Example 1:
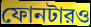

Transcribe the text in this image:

ফোনটারও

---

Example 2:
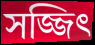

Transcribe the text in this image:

সজ্জিৎ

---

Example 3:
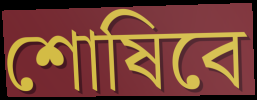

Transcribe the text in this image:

শোষিবে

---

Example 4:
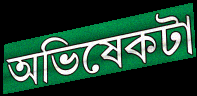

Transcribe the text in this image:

অভিষেকটা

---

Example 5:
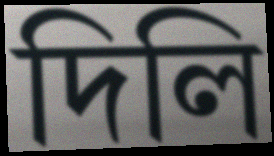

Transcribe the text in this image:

দিলি